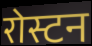
रोस्टन